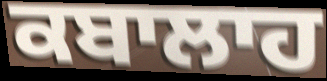
ਕਬਾਲਾਹ